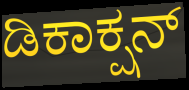
ಡಿಕಾಕ್ಷನ್